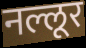
नल्लूर